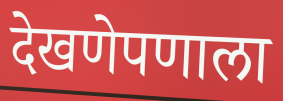
देखणेपणाला